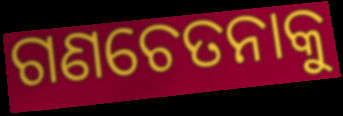
ଗଣଚେତନାକୁ